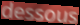
dessous